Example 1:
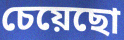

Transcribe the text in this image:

চেয়েছো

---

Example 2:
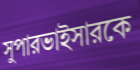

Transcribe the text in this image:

সুপারভাইসারকে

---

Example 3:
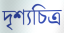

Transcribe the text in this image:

দৃশ্যচিত্র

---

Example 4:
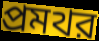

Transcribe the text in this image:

প্রমথর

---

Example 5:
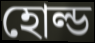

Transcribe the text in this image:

হোল্ড